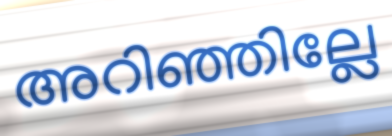
അറിഞ്ഞില്ലേ